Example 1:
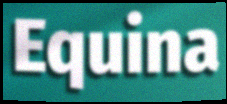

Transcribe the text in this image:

Equina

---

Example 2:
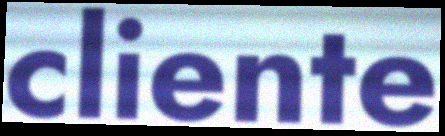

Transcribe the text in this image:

cliente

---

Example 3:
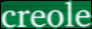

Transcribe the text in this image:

creole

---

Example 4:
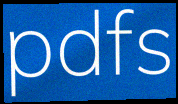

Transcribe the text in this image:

pdfs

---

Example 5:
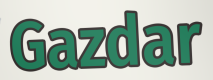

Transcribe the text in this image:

Gazdar